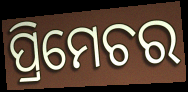
ପ୍ରିମେଚର